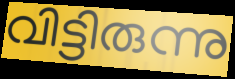
വിട്ടിരുന്നു